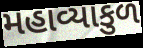
મહાવ્યાકુળ